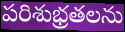
పరిశుభ్రతలను